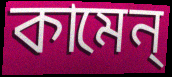
কামেন্